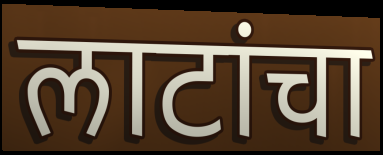
लाटांचा